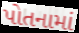
પોતનામાં